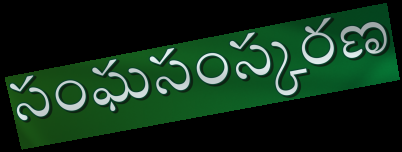
సంఘసంస్కరణ